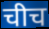
चीच